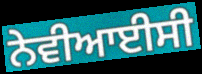
ਨੇਵੀਆਈਸੀ